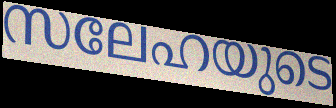
സലേഹയുടെ